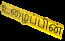
உழைப்பின்